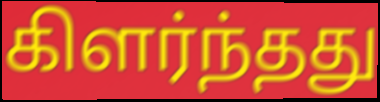
கிளர்ந்தது